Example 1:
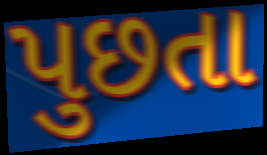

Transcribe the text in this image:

પુછતા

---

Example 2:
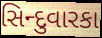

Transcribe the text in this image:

સિન્દુવારકા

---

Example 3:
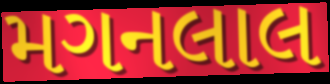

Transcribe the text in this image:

મગનલાલ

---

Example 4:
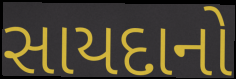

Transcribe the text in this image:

સાયદાનો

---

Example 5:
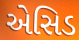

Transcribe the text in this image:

એસિડ